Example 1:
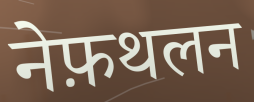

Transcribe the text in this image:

नेफ़थलन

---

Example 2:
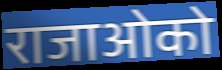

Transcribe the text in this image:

राजाओको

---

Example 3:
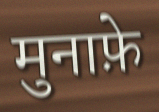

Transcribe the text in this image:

मुनाफ़े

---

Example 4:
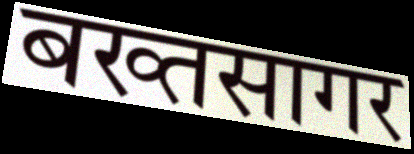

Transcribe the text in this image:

बख्तसागर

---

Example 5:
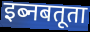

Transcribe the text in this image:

इब्नबतूता